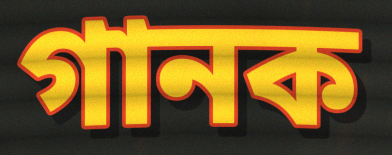
গানক